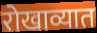
रोखाव्यात